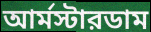
আর্মস্টারডাম